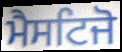
ਮੈਸਟਿਜੋ